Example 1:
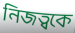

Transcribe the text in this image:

নিজত্বকে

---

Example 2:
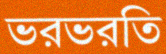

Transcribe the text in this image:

ভরভরতি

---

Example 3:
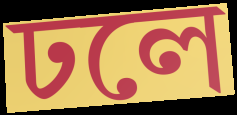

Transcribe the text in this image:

ঢলে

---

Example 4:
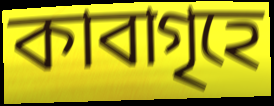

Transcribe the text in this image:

কাবাগৃহে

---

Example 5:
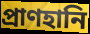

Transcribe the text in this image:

প্রাণহানি